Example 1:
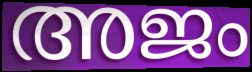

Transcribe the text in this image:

അജം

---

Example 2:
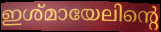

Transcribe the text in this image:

ഇശ്മായേലിന്റെ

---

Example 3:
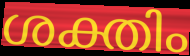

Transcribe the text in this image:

ശക്തിം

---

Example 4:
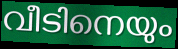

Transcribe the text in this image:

വീടിനെയും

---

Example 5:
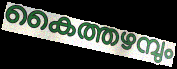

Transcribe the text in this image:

കൈത്തഴമ്പും